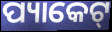
ପ୍ୟାକେଟ୍